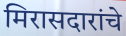
मिरासदारांचे